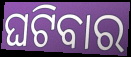
ଘଟିବାର